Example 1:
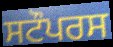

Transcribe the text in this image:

ਸਟੌਪਰਸ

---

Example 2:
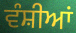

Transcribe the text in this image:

ਵੰਸ਼ੀਆਂ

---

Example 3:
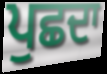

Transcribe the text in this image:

ਪੁਛਦਾ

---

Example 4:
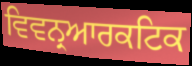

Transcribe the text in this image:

ਵਿਵਨ੍ਰਆਰਕਟਿਕ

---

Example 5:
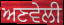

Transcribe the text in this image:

ਅਣਵੇਲੀ